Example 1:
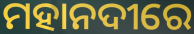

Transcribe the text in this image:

ମହାନଦୀରେ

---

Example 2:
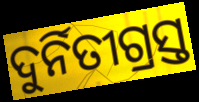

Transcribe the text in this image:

ଦୁର୍ନିତୀଗ୍ରସ୍ତ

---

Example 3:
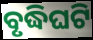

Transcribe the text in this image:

ବୃଦ୍ଧିଘଟି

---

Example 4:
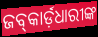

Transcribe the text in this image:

ଜବ୍‍କାର୍ଡ଼ଧାରୀଙ୍କ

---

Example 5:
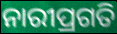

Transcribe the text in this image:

ନାରୀପ୍ରଗତି